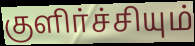
குளிர்ச்சியும்